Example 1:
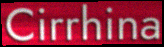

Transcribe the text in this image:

Cirrhina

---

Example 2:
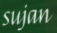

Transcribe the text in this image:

sujan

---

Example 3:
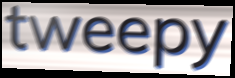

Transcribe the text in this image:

tweepy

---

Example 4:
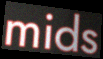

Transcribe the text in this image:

mids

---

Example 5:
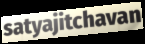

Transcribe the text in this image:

satyajitchavan